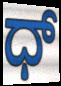
ಧ್